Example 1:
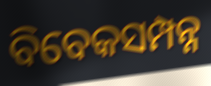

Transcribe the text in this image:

ବିବେକସମ୍ପନ୍ନ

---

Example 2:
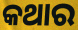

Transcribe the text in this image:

କଥାର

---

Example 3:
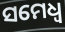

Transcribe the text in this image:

ସମେଧ୍ୱ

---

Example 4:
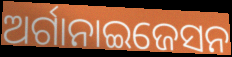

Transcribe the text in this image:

ଅର୍ଗାନାଇଜେସନ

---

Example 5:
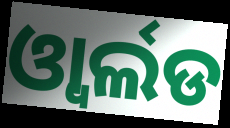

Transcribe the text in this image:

ଓ୍ବାର୍ଲଡ